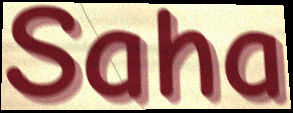
Saha